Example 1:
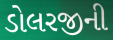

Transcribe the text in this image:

ડોલરજીની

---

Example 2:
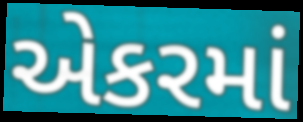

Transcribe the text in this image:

એકરમાં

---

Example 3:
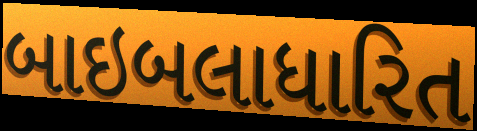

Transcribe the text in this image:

બાઇબલાધારિત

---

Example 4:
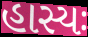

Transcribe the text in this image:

હાસ્યઃ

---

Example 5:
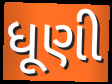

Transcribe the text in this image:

ધૂણી